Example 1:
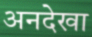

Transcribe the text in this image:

अनदेखा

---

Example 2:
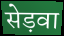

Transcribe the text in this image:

सेड़वा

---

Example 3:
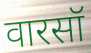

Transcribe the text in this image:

वारसॉ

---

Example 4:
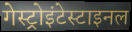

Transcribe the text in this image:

गेस्ट्रोइंटेस्टाइनल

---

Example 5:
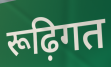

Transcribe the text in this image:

रूढ़िगत